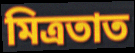
মিত্ৰতাত